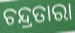
ଚନ୍ଦ୍ରତାରା